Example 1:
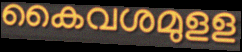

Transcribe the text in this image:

കൈവശമുളള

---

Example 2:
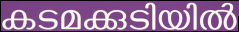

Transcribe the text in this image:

കടമക്കുടിയിൽ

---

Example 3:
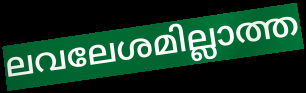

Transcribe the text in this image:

ലവലേശമില്ലാത്ത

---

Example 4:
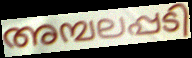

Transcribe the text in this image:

അമ്പലപ്പടി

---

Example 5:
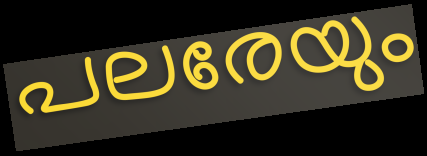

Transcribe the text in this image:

പലരേയും